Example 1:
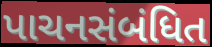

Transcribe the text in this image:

પાચનસંબંધિત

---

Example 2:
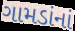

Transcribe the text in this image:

ગામડાંનાં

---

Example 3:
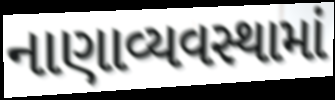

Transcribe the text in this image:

નાણાવ્યવસ્થામાં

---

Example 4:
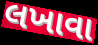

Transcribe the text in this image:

લખાવા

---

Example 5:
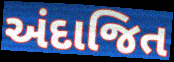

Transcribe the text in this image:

અંદાજિત